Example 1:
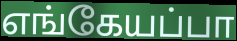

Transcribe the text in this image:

எங்கேயப்பா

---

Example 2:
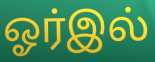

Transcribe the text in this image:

ஓர்இல்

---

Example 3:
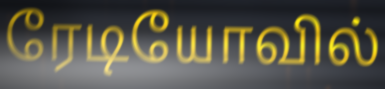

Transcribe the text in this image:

ரேடியோவில்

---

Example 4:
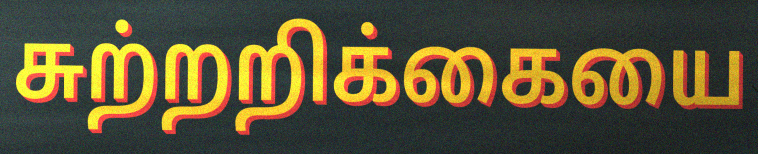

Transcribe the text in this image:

சுற்றறிக்கையை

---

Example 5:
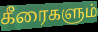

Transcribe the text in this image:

கீரைகளும்